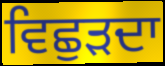
ਵਿਛੁੜਦਾ